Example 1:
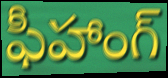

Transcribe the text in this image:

ఫీహాంగ్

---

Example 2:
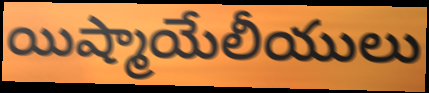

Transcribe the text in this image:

యిష్మాయేలీయులు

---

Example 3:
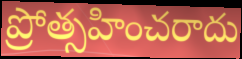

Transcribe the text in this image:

ప్రోత్సహించరాదు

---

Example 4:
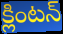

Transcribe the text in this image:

క్లింటన్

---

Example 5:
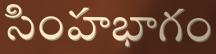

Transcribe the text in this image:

సింహభాగం